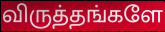
விருத்தங்களே